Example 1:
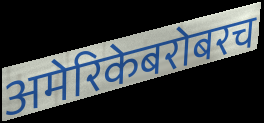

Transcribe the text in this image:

अमेरिकेबरोबरच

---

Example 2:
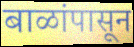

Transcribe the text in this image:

बाळांपासून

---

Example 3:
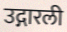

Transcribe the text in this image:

उद्गारली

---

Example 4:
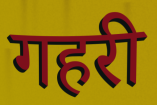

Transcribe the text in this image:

गहरी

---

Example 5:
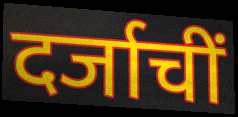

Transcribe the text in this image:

दर्जाचीं